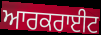
ਆਰਕਰਾਈਟ